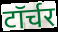
टॉर्चर